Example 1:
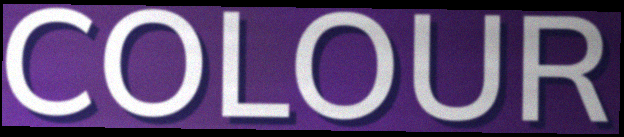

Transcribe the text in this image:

COLOUR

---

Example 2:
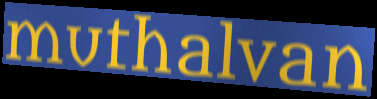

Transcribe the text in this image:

muthalvan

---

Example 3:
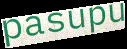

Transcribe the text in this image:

pasupu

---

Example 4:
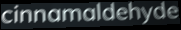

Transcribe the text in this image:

cinnamaldehyde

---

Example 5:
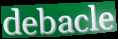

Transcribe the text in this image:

debacle